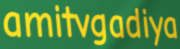
amitvgadiya